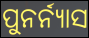
ପୁନର୍ନ୍ୟାସ